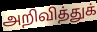
அறிவித்துக்